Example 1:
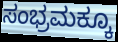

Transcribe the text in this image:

ಸಂಭ್ರಮಕ್ಕೂ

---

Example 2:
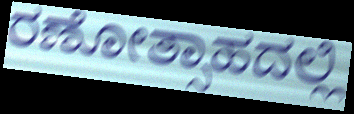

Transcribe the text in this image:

ರಣೋತ್ಸಾಹದಲ್ಲಿ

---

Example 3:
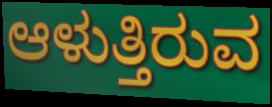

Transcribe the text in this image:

ಆಳುತ್ತಿರುವ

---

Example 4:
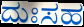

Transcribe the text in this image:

ದುಃಸಹ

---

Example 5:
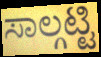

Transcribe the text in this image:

ಸಾಲ್ಗಟ್ಟಿ